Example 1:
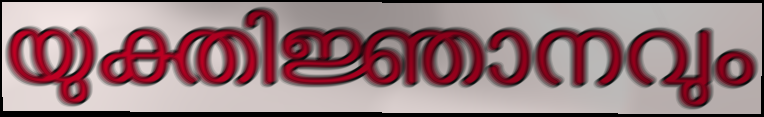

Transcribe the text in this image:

യുക്തിജ്ഞാനവും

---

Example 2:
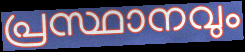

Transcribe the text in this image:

പ്രസ്ഥാനവും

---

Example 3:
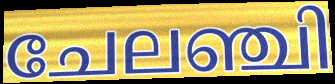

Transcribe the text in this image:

ചേലഞ്ചി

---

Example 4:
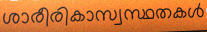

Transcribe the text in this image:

ശാരീരികാസ്വസ്ഥതകൾ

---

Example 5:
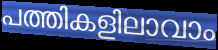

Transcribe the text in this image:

പത്തികളിലാവാം